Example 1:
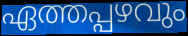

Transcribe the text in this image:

ഏത്തപ്പഴവും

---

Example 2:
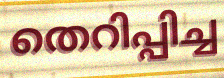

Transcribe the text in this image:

തെറിപ്പിച്ച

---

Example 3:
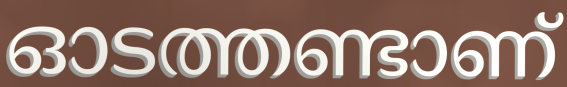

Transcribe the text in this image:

ഓടത്തണ്ടാണ്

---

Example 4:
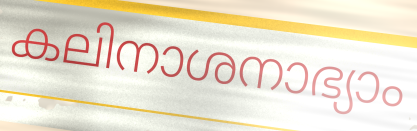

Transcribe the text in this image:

കലിനാശനാഭ്യാം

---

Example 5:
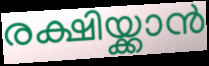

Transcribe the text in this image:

രക്ഷിയ്ക്കാൻ